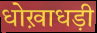
धोख़ाधड़ी